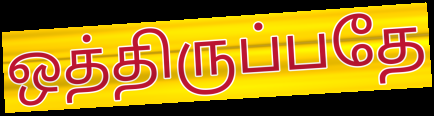
ஒத்திருப்பதே